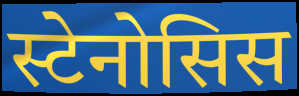
स्टेनोसिस